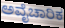
ಅವೈಚಾರಿಕ